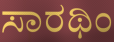
ಸಾರಥಿಂ